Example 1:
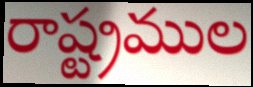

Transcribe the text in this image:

రాష్ట్రముల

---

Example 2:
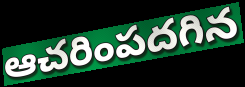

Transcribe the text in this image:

ఆచరింపదగిన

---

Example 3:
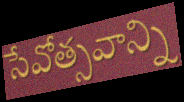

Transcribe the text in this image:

సేవోత్సవాన్ని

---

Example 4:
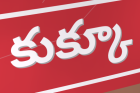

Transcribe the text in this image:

కుక్కూ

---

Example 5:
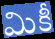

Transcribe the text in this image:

మికీ